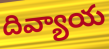
దివ్యాయ